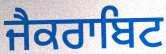
ਜੈਕਰਾਬਿਟ